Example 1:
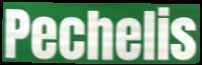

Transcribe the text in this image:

Pechelis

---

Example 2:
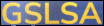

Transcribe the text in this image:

GSLSA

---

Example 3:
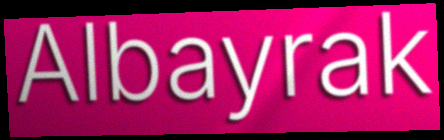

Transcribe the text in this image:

Albayrak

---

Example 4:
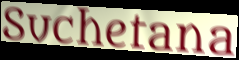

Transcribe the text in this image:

Suchetana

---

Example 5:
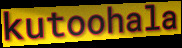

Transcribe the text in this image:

kutoohala